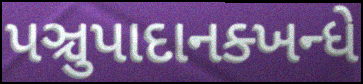
પઞ્ચુપાદાનક્ખન્ધે